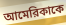
আমেরিকাকে